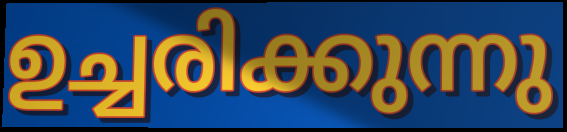
ഉച്ചരിക്കുന്നു